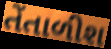
તેંતાળીશ